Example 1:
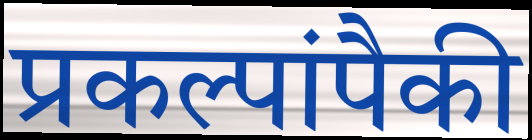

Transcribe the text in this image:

प्रकल्पांपैकी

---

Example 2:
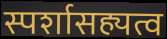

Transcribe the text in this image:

स्पर्शासह्यत्व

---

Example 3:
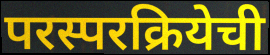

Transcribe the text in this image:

परस्परक्रियेची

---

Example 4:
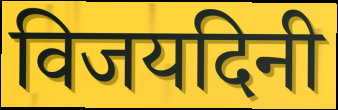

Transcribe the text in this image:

विजयदिनी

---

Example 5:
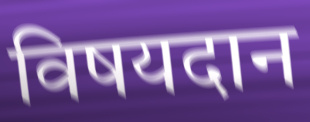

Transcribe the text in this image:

विषयदान